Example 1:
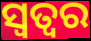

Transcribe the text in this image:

ସ୍ୱତ୍ୱର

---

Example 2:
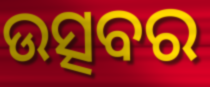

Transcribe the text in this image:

ଉତ୍ସବର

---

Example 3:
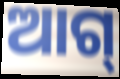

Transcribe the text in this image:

ଆଗ୍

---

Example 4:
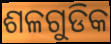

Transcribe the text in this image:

ଶଳଗୁଡିକ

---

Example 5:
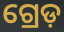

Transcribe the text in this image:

ଗ୍ରେଡ଼